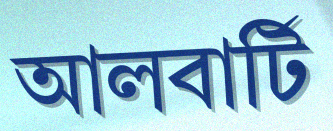
আলবার্টি